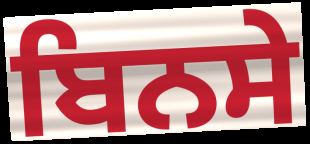
ਬਿਨਸੇ